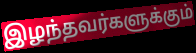
இழந்தவர்களுக்கும்